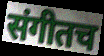
संगीतच